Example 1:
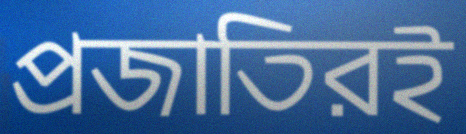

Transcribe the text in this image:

প্রজাতিরই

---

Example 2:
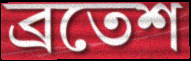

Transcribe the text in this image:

ব্রতেশ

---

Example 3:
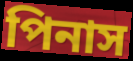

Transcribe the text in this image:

পিনাস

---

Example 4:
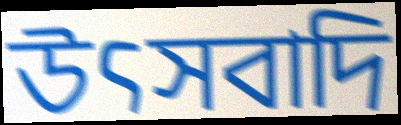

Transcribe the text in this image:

উৎসবাদি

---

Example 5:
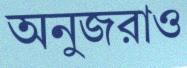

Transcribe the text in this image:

অনুজরাও